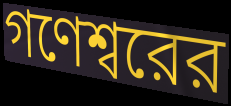
গণেশ্বরের